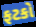
ફટકો